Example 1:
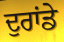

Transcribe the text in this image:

ਦੁਰਾਂਡੇ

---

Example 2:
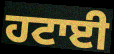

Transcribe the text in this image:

ਹਟਾਈ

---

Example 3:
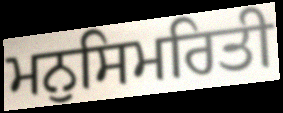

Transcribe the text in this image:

ਮਨੁਸਿਮਰਿਤੀ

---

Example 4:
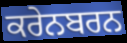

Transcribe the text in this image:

ਕਰੇਨਬਰਨ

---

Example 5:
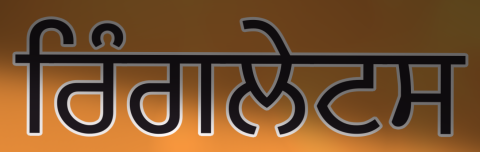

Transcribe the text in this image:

ਰਿੰਗਲੇਟਸ